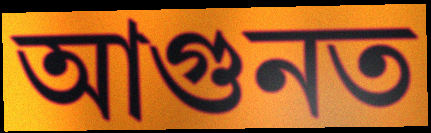
আগুনত